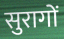
सुरागों